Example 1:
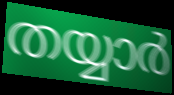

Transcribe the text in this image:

തയ്യാർ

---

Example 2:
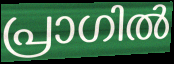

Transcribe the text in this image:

പ്രാഗിൽ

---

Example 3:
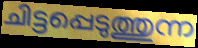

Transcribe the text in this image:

ചിട്ടപ്പെടുത്തുന്ന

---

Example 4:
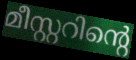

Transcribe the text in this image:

മീസ്റ്ററിന്റെ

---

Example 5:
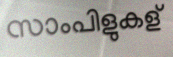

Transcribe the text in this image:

സാംപിളുകള്